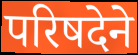
परिषदेने